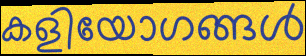
കളിയോഗങ്ങൾ